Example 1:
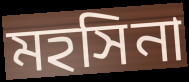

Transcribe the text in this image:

মহসিনা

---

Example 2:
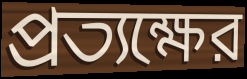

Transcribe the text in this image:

প্রত্যক্ষের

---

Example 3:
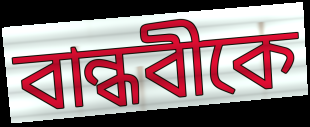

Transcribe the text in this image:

বান্ধবীকে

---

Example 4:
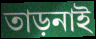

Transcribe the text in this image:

তাড়নাই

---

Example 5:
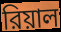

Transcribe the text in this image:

রিয়াল